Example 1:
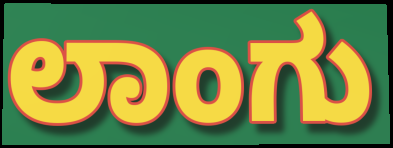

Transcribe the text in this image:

ಲಾಂಗು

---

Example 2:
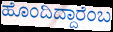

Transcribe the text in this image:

ಹೊಂದಿದ್ದಾರೆಂಬ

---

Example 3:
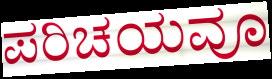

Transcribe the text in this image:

ಪರಿಚಯವೂ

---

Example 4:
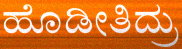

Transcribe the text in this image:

ಹೊಡೀತಿದ್ರು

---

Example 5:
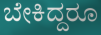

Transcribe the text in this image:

ಬೇಕಿದ್ದರೂ